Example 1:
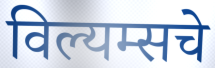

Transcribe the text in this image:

विल्यम्सचे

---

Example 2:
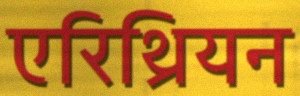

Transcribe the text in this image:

एरिथ्रियन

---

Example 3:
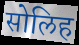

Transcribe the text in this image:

सोलिह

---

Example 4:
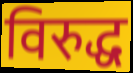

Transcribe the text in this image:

विरुद्ध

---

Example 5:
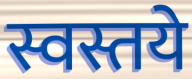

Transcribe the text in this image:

स्वस्तये